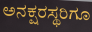
ಅನಕ್ಷರಸ್ಥರಿಗೂ